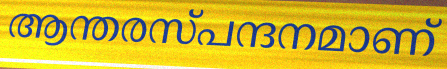
ആന്തരസ്പന്ദനമാണ്